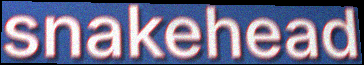
snakehead